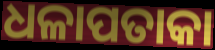
ଧଳାପତାକା